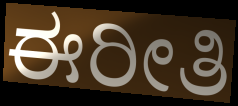
ಈರೀತಿ